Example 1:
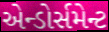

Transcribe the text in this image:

એન્ડોર્સમેન્ટ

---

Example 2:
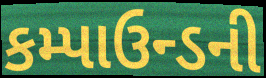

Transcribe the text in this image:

કમ્પાઉન્ડની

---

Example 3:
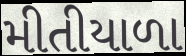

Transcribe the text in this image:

મીતીયાળા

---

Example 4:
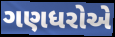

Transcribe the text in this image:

ગણધરોએ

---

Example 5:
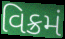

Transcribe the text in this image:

વિક્રમં